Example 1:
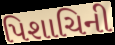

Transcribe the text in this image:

પિશાચિની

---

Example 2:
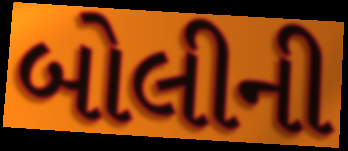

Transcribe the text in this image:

બોલીની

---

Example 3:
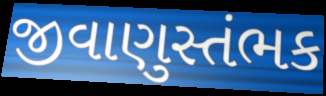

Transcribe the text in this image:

જીવાણુસ્તંભક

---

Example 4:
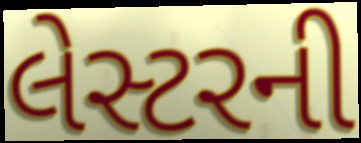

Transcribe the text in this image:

લેસ્ટરની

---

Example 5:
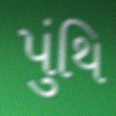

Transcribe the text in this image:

પુંથિ